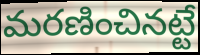
మరణించినట్టే